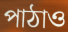
পাঠাও